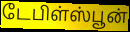
டேபிள்ஸ்பூன்